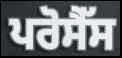
ਪਰੋਸੈੱਸ